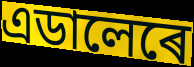
এডালেৰে